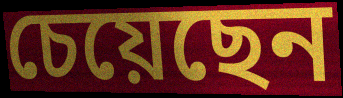
চেয়েছেন